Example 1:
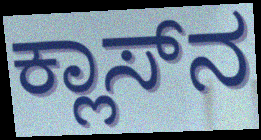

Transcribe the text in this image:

ಕ್ಲಾಸ್‌ನ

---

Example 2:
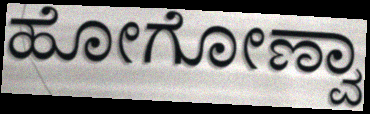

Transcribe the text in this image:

ಹೋಗೋಣ್ವಾ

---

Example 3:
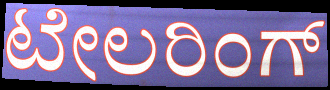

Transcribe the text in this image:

ಟೇಲರಿಂಗ್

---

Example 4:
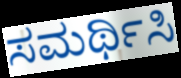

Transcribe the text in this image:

ಸಮರ್ಥಿಸಿ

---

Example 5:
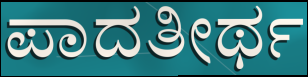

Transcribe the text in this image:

ಪಾದತೀರ್ಥ